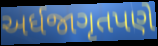
અર્ધજાગૃતપણે